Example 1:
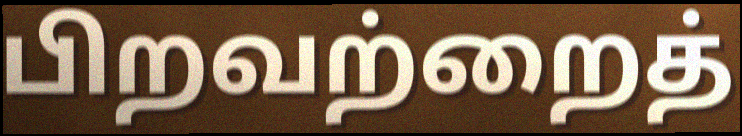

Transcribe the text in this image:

பிறவற்றைத்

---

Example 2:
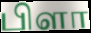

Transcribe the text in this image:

பிளா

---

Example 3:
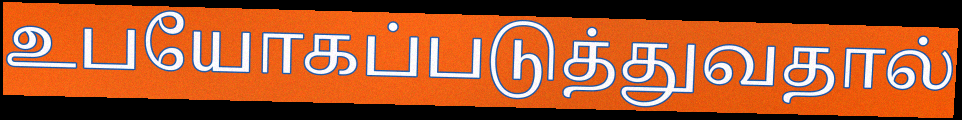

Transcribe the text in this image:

உபயோகப்படுத்துவதால்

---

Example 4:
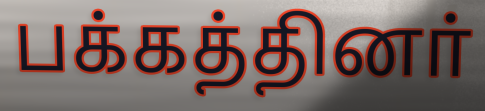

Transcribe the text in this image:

பக்கத்தினர்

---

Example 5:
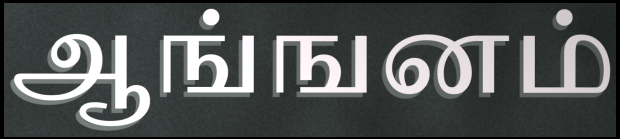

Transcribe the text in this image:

ஆங்ஙனம்